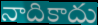
నాదికాదు